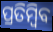
ପ୍ରତିମ୍ବିବ